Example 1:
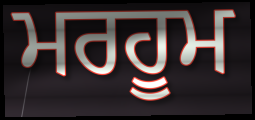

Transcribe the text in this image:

ਮਰਹੂਮ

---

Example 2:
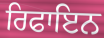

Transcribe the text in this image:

ਰਿਫਾਇਨ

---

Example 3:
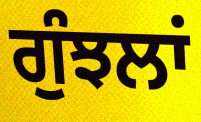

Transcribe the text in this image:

ਗੁੰਝਲਾਂ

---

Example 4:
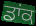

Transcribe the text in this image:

ਡਾਂਕ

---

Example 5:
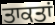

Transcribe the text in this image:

ਤਾਕਤਾਂ